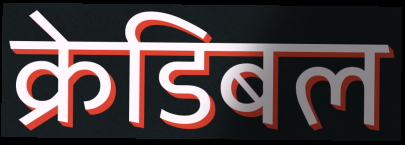
क्रेडिबल